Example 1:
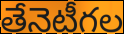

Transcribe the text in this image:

తేనెటీగల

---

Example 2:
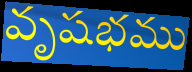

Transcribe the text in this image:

వృషభము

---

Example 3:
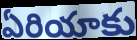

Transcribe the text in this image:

ఏరియాకు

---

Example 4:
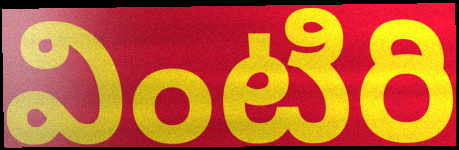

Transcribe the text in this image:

వింటిరి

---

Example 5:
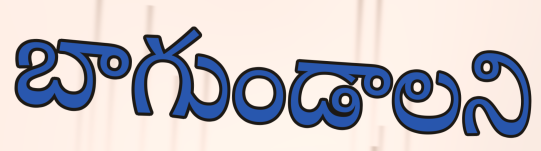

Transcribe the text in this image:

బాగుండాలని